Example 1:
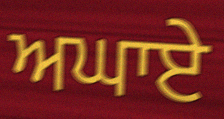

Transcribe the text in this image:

ਅਘਾਏ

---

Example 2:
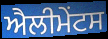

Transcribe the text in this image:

ਐਲੀਮੇੰਟਸ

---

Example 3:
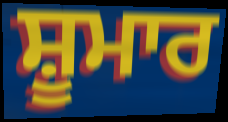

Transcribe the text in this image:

ਸ਼ੂਮਾਰ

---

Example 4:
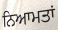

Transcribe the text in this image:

ਨਿਆਮਤਾਂ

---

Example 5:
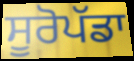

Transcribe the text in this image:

ਸੂਰੋਪੱਡਾ